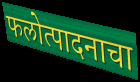
फलोत्पादनाचा